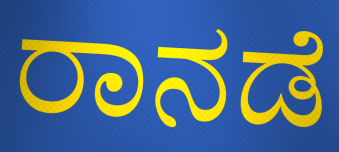
ರಾನಡೆ